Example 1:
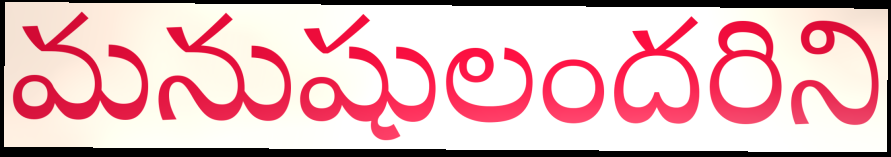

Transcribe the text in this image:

మనుషులందరిని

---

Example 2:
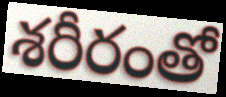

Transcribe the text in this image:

శరీరంతో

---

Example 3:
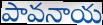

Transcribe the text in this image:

పావనాయ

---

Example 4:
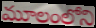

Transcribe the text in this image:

మూలంలోని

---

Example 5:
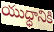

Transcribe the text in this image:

యుధ్ధానికి